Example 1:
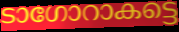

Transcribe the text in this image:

ടാഗോറാകട്ടെ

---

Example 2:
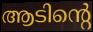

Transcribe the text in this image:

ആടിന്റെ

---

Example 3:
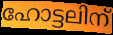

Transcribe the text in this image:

ഹോട്ടലിന്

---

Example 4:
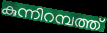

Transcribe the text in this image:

കുന്നിറമ്പത്ത്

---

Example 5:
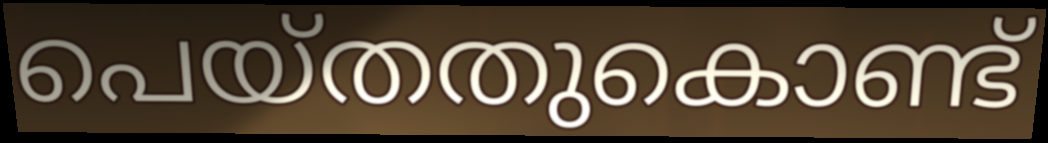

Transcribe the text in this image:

പെയ്തതുകൊണ്ട്